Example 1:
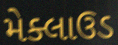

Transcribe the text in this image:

મેક્લાઉડ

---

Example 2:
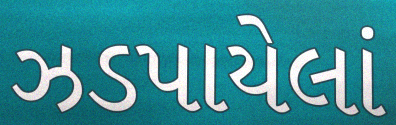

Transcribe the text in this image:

ઝડપાયેલાં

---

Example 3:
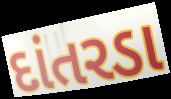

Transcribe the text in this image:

દાંતરડા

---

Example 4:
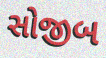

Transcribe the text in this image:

સોજીબ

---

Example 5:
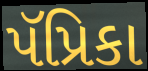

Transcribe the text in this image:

પૅપ્રિકા